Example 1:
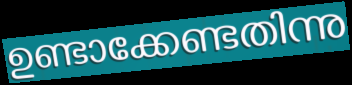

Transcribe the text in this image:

ഉണ്ടാക്കേണ്ടതിന്നു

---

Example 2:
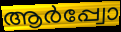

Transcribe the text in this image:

ആർപ്പ്വോ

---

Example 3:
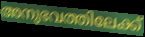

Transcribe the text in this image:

അനുഭവത്തിലേക്ക്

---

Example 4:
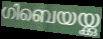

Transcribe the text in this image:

ഗിബെയയ്ക്കു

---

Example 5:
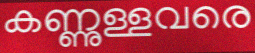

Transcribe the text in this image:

കണ്ണുള്ളവരെ